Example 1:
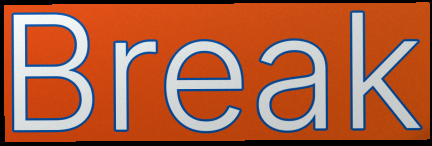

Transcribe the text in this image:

Break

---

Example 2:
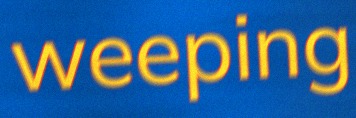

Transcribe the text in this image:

weeping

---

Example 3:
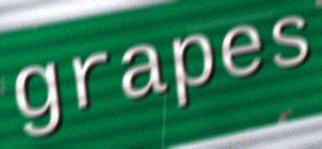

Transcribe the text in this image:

grapes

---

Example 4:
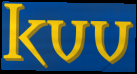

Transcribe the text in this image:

kuu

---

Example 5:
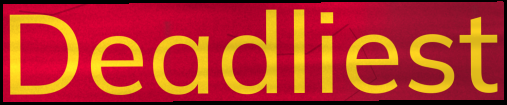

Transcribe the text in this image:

Deadliest